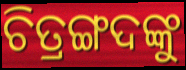
ଚିତ୍ରଙ୍ଗଦଙ୍କୁ